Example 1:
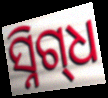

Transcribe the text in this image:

ସ୍ନିଗ୍‍ଧ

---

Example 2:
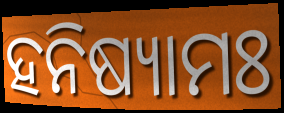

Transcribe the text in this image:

ହନିଷ୍ୟାମଃ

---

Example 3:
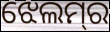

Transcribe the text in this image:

ଝେଲମ୍‌ର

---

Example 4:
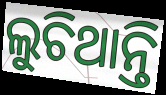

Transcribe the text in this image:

ଲୁଚିଥାନ୍ତି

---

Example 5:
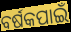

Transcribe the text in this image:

ବର୍ଷକପାଇଁ